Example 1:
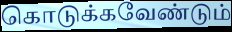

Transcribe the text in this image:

கொடுக்கவேண்டும்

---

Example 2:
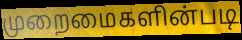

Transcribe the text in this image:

முறைமைகளின்படி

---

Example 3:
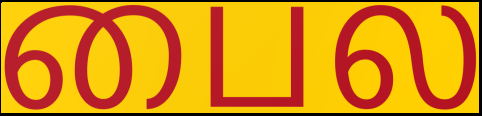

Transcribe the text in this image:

பைல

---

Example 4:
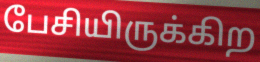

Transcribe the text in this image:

பேசியிருக்கிற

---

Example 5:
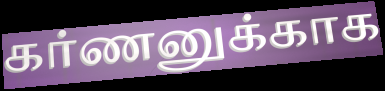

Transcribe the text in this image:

கர்ணனுக்காக